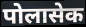
पोलासेक